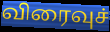
விரைவுச்